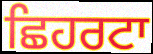
ਛਿਹਰਟਾ